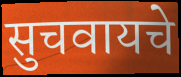
सुचवायचे